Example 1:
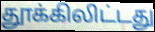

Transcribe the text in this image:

தூக்கிலிட்டது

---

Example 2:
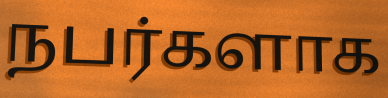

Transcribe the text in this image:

நபர்களாக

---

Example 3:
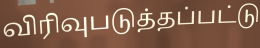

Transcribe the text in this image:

விரிவுபடுத்தப்பட்டு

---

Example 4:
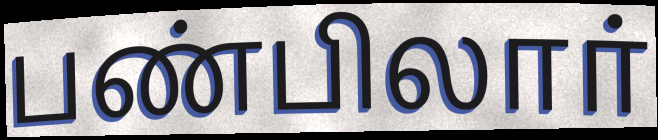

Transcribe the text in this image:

பண்பிலார்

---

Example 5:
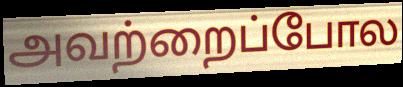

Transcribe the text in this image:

அவற்றைப்போல